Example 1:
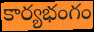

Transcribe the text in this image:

కార్యభంగం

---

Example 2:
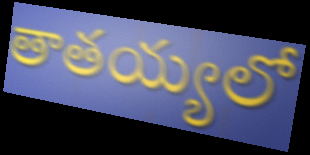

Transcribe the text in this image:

తాతయ్యలో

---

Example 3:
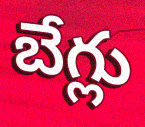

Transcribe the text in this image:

బేగ్లు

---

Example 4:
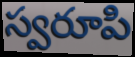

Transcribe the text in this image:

స్వరూపి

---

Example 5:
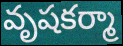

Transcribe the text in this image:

వృషకర్మా